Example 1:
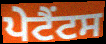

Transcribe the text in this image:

ਪੇਟੈਂਟਸ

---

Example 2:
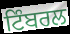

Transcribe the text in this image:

ਟਿੰਬਰਲ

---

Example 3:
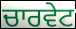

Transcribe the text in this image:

ਚਾਰਵੇਟ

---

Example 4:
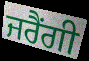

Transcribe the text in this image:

ਜਰੈਂਗੀ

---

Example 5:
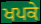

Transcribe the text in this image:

ਖਪਕੇ